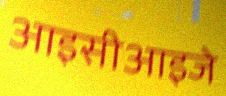
आइसीआइजे